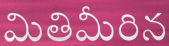
మితిమీరిన